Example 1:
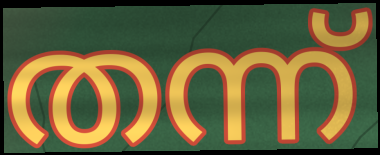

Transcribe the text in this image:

തന്ന്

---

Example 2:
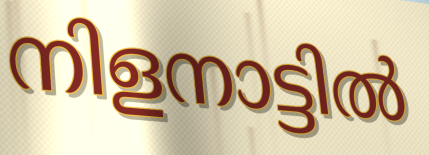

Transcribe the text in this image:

നിളനാട്ടിൽ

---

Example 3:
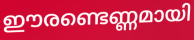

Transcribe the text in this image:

ഈരണ്ടെണ്ണമായി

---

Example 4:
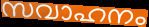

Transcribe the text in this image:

സവാഹനം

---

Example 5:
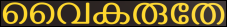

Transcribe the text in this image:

വൈകരുതേ